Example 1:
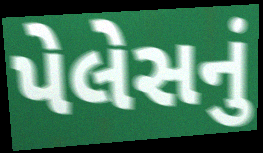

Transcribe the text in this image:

પેલેસનું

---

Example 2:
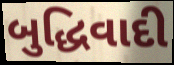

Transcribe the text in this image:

બુદ્ધિવાદી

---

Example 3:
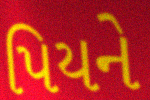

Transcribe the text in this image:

પિયને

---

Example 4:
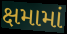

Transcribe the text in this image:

ક્ષમામાં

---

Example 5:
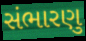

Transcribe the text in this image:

સંભારણુ